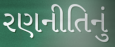
રણનીતિનું